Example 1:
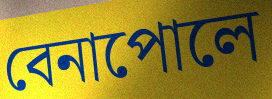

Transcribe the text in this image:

বেনাপোলে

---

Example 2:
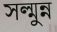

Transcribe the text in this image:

সল্মুন্ন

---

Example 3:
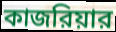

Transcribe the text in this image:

কাজরিয়ার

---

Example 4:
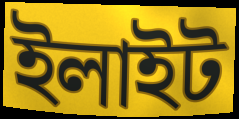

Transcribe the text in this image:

ইলাইট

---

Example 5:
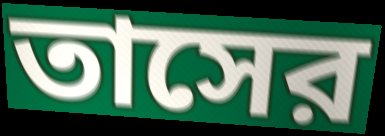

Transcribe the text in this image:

তাসের